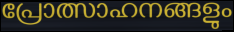
പ്രോത്സാഹനങ്ങളും